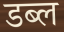
डब्ल